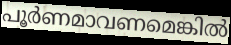
പൂർണമാവണമെങ്കിൽ